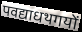
पवद्याधथगयों